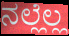
ನಲ್ಲೆಲ್ಲ